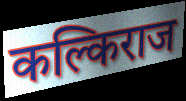
कल्किराज